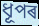
ধূপৰ